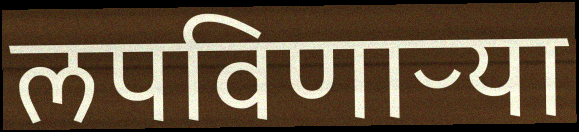
लपविणाऱ्या